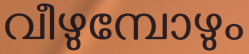
വീഴുമ്പോഴും